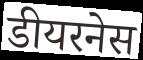
डीयरनेस